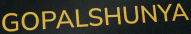
GOPALSHUNYA